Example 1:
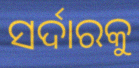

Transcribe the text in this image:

ସର୍ଦାରକୁ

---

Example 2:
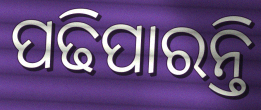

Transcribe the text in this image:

ପଢିପାରନ୍ତି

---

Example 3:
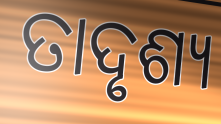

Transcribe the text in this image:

ତାଦୃଶ୍ୟ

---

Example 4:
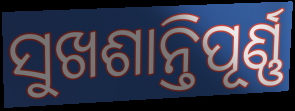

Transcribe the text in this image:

ସୁଖଶାନ୍ତିପୂର୍ଣ୍ଣ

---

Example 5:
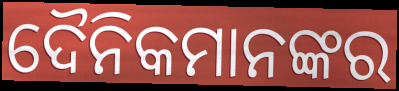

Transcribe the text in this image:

ଦୈନିକମାନଙ୍କର